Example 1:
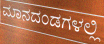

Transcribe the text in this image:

ಮಾನದಂಡಗಳಲ್ಲಿ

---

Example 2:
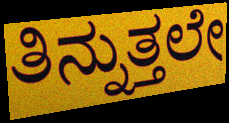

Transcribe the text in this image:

ತಿನ್ನುತ್ತಲೇ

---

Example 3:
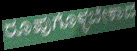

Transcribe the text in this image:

ರೂಪುಗೊಳ್ಳಬೇಕಾದ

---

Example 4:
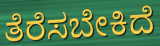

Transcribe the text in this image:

ತೆರೆಸಬೇಕಿದೆ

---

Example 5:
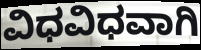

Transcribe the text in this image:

ವಿಧವಿಧವಾಗಿ